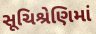
સૂચિશ્રેણિમાં